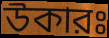
উকারঃ